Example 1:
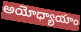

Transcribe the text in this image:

అయోధ్యాయాం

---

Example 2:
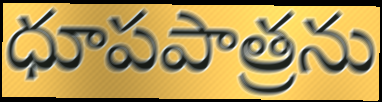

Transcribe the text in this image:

ధూపపాత్రను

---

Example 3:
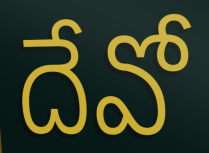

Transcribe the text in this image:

దేవో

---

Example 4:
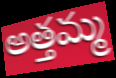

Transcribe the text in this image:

అత్తమ్మ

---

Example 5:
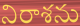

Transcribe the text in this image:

నిరాశను